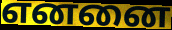
எனனை